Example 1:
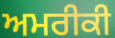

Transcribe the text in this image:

ਅਮਰੀਕੀ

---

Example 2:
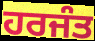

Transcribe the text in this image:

ਹਰਜੰਤ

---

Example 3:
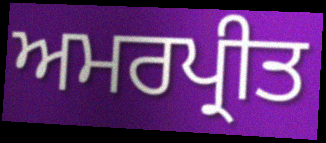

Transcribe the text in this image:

ਅਮਰਪ੍ਰੀਤ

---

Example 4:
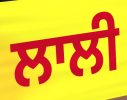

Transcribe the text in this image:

ਲਾਲੀ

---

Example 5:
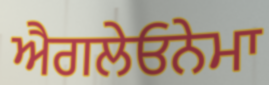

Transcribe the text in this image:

ਐਗਲੇਓਨੇਮਾ